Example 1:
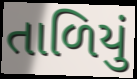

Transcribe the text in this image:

તાળિયું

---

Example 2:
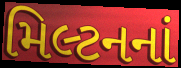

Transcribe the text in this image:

મિલ્ટનનાં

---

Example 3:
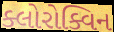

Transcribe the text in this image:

ક્લોરોક્વિન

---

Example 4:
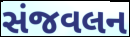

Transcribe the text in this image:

સંજવલન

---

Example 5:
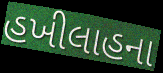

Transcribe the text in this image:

હખીલાહના